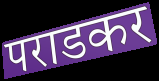
पराडकर